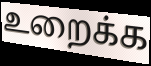
உறைக்க